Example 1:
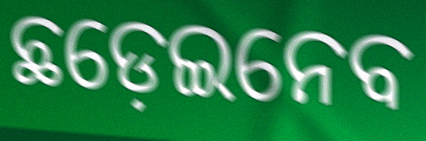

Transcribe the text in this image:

ଛଡ଼େଇନେବ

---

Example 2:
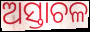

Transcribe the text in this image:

ଅସ୍ତାଚଳ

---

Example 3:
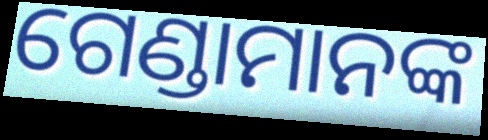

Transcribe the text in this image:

ଗେଣ୍ଡାମାନଙ୍କ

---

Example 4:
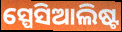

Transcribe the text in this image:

ସ୍ପେସିଆଲିଷ୍ଟ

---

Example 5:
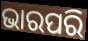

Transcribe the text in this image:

ଭାରପରି